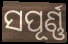
ସପୂର୍ଣ୍ଣ